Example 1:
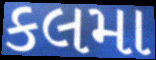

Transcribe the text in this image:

કલમા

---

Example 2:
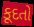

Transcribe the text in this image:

કૂદતો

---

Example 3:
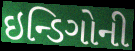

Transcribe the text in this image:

ઇન્ડિગોની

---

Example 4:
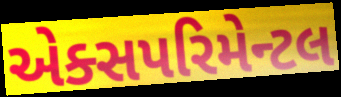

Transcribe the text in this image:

એક્સપરિમેન્ટલ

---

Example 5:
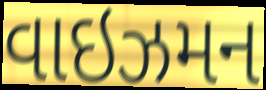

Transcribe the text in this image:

વાઇઝમન